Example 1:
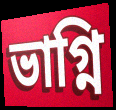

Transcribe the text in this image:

ভাগ্নি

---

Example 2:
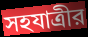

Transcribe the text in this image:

সহযাত্রীর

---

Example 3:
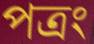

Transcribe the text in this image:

পত্রং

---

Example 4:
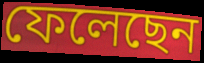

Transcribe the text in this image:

ফেলেছেন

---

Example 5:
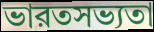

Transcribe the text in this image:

ভারতসভ্যতা